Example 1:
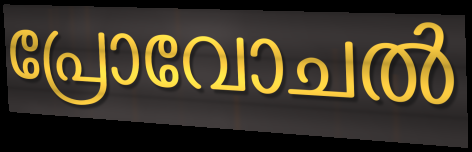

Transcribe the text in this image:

പ്രോവോചൽ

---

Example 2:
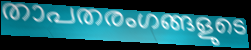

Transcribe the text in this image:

താപതരംഗങ്ങളുടെ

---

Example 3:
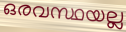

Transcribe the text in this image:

ഒരവസ്ഥയല്ല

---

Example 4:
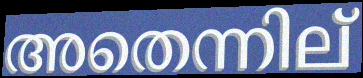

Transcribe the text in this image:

അതെന്നില്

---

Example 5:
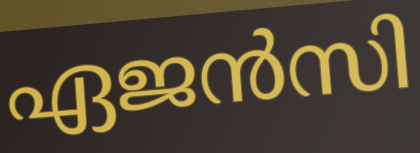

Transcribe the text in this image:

ഏജൻസി